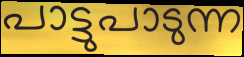
പാട്ടുപാടുന്ന